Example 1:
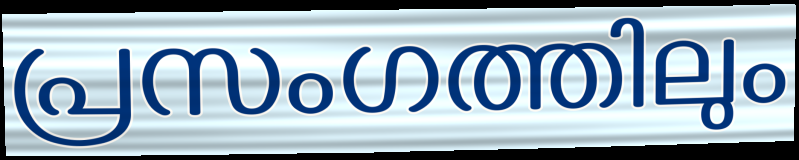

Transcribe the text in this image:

പ്രസംഗത്തിലും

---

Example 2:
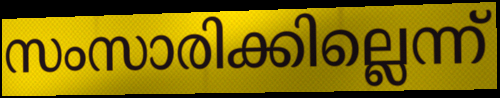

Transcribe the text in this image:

സംസാരിക്കില്ലെന്ന്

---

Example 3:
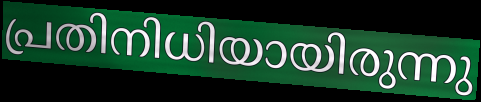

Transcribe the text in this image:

പ്രതിനിധിയായിരുന്നു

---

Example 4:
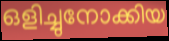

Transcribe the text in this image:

ഒളിച്ചുനോക്കിയ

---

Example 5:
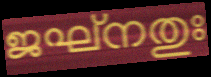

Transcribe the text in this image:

ജഘ്നതുഃ